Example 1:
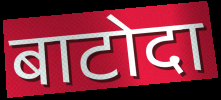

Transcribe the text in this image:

बाटोदा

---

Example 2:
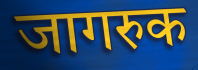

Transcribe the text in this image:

जागरुक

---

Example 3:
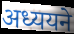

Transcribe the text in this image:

अध्ययने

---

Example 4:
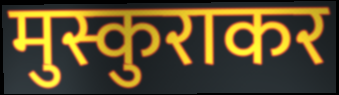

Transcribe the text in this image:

मुस्‍कुराकर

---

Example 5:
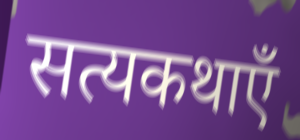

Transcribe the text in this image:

सत्यकथाएँ